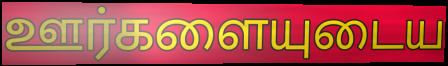
ஊர்களையுடைய